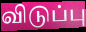
விடுப்பு